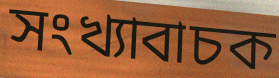
সংখ্যাবাচক